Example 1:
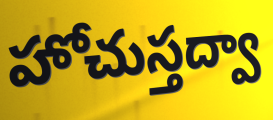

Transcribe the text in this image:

హోచుస్తద్వా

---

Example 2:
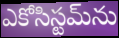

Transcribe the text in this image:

ఎకోసిస్టమ్‌ను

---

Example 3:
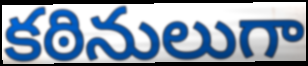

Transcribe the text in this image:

కఠినులుగా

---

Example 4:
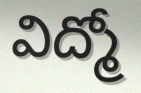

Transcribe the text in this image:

విద్మో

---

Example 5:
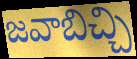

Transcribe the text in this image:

జవాబిచ్చి